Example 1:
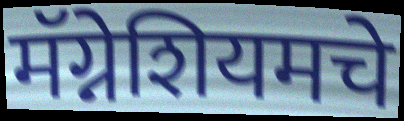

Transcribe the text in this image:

मॅग्नेशियमचे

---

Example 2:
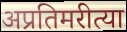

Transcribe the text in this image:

अप्रतिमरीत्या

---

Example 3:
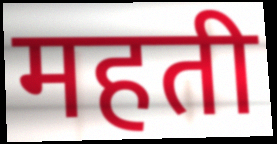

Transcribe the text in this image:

महती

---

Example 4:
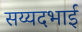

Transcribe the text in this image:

सय्यदभाई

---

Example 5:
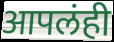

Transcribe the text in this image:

आपलंही